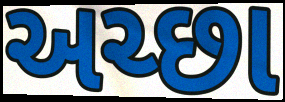
અચ્છા